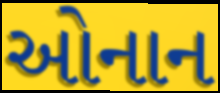
ઓનાન